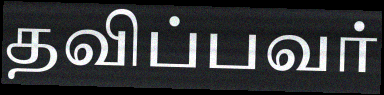
தவிப்பவர்